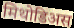
मिथोडिअस